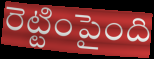
రెట్టింపైంది